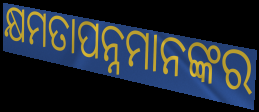
କ୍ଷମତାପନ୍ନମାନଙ୍କର